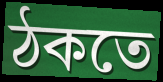
ঠকতে